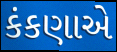
કંકણાએ